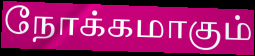
நோக்கமாகும்